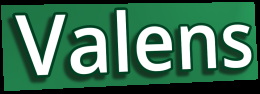
Valens